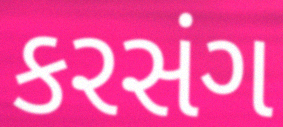
કરસંગ